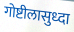
गोष्टीलासुध्दा